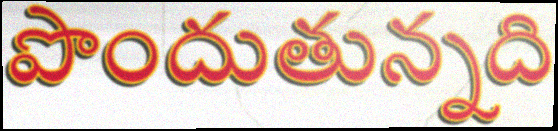
పొందుతున్నది